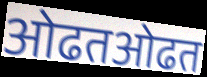
ओढतओढत